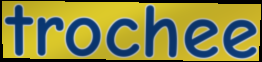
trochee